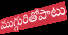
ముగ్గురితోపాటు